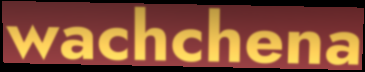
wachchena